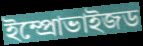
ইম্প্রোভাইজড